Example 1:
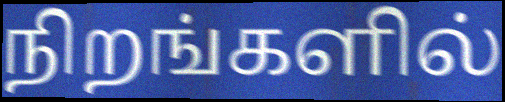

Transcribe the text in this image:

நிறங்களில்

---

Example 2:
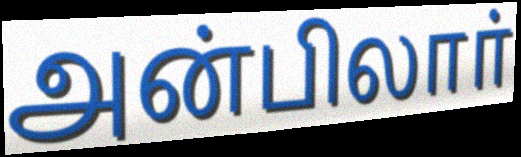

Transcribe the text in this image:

அன்பிலார்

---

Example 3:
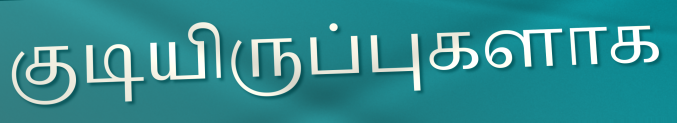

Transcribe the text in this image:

குடியிருப்புகளாக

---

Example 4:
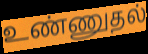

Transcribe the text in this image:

உண்ணுதல்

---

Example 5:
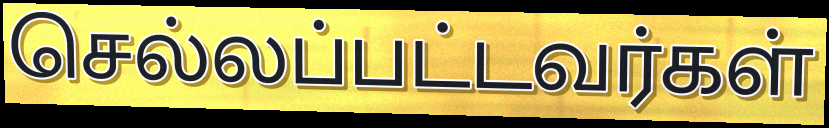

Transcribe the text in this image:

செல்லப்பட்டவர்கள்